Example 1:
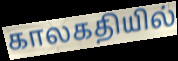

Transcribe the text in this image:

காலகதியில்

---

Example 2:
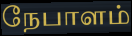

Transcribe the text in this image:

நேபாளம்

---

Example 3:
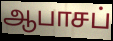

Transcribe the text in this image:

ஆபாசப்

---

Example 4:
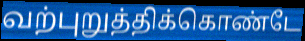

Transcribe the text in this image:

வற்புறுத்திக்கொண்டே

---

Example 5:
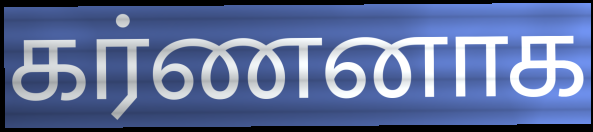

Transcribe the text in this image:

கர்ணனாக